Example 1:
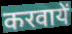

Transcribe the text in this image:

करवायें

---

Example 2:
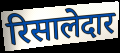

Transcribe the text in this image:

रिसालेदार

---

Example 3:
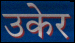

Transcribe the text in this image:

उकेर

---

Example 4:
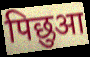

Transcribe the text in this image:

पिछुआ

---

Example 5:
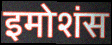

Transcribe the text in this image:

इमोशंस